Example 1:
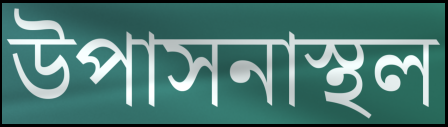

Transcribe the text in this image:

উপাসনাস্থল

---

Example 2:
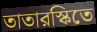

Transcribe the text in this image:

তাতারস্কিতে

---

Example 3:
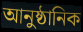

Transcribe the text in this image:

আনুষ্ঠানিক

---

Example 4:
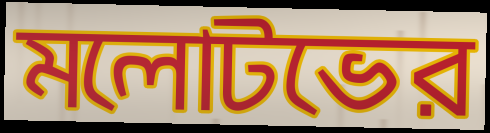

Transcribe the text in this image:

মলোটভের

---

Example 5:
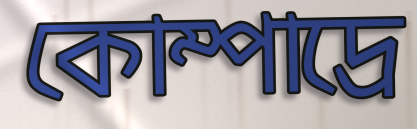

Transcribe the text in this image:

কোম্পাদ্রে